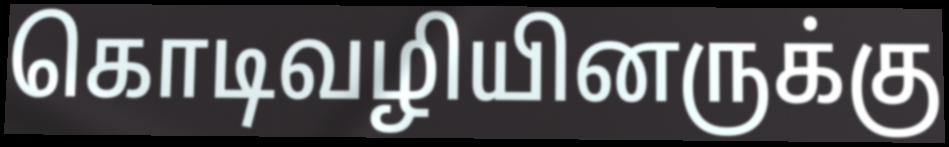
கொடிவழியினருக்கு